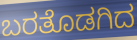
ಬರತೊಡಗಿದ